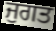
ਜੁਗਤ